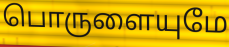
பொருளையுமே